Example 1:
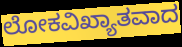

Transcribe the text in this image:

ಲೋಕವಿಖ್ಯಾತವಾದ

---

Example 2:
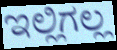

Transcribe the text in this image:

ಇಲ್ಲಿಗಲ್ಲ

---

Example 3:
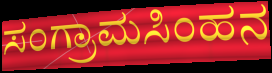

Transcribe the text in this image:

ಸಂಗ್ರಾಮಸಿಂಹನ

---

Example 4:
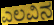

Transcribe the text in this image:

ಎಲವಿನ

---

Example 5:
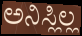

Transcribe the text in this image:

ಅನಿಸ್ಲಿಲ್ಲ